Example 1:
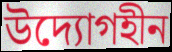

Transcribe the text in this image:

উদ্যোগহীন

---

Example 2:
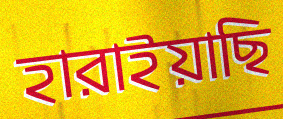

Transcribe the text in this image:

হারাইয়াছি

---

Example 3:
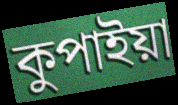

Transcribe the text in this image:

কুপাইয়া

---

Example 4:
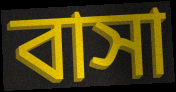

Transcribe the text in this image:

বাসা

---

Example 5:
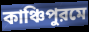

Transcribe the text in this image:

কাঞ্চিপুরমে